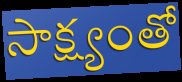
సాక్ష్యంతో